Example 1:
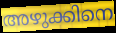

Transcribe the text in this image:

അഴുക്കിനെ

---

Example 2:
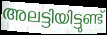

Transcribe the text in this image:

അലട്ടിയിട്ടുണ്ട്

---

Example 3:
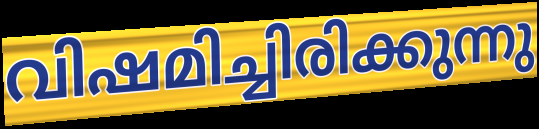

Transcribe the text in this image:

വിഷമിച്ചിരിക്കുന്നു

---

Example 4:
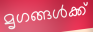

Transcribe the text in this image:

മൃഗങ്ങൾക്ക്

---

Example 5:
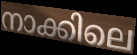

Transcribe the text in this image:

നാക്കിലെ